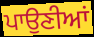
ਪਾਉਣੀਆਂ